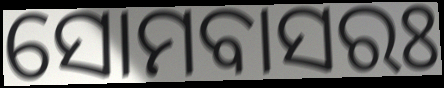
ସୋମବାସରଃ